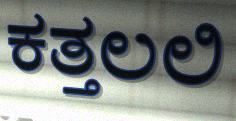
ಕತ್ತಲಲಿ